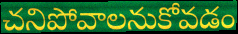
చనిపోవాలనుకోవడం